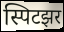
स्पिटझर